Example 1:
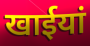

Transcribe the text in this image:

खाईयां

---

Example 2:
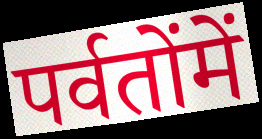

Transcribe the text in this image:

पर्वतोंमें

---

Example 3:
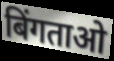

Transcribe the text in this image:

बिंगताओ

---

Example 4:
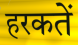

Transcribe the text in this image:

हरकतें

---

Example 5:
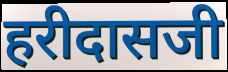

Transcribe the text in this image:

हरीदासजी